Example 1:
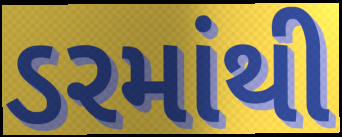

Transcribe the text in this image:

ડરમાંથી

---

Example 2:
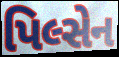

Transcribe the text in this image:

પિલ્સેન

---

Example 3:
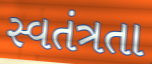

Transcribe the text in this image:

સ્વતંત્રતા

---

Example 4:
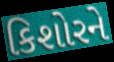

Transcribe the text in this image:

કિશોરને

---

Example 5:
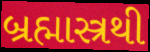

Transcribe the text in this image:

બ્રહ્માસ્ત્રથી